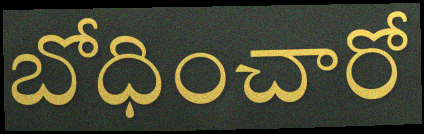
బోధించారో